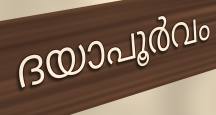
ദയാപൂർവം